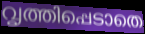
വൃത്തിപ്പെടാതെ